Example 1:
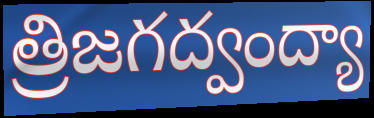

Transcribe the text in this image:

త్రిజగద్వంద్యా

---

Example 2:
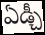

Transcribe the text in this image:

ఏడ్చీ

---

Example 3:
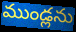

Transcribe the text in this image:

ముండ్లను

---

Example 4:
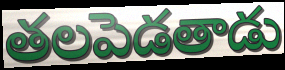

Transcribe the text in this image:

తలపెడతాడు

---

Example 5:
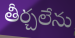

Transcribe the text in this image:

తీర్చలేను